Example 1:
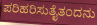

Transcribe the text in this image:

ಪರಿಹರಿಸುತೈತಂದನು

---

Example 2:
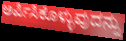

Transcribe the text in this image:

ಅರ್ಪಿಸಿಕೊಳ್ಳುವುದನ್ನು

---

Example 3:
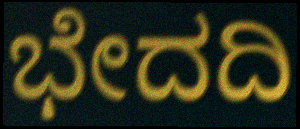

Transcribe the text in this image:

ಭೇದದಿ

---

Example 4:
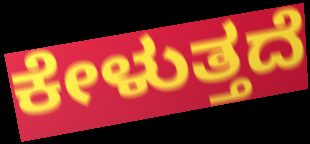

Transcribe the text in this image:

ಕೇಳುತ್ತದೆ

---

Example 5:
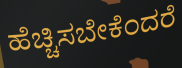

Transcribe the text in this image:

ಹೆಚ್ಚಿಸಬೇಕೆಂದರೆ